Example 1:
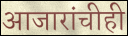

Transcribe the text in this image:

आजारांचीही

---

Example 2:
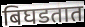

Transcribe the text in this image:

बिघडतात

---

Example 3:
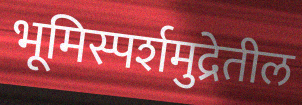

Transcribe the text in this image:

भूमिस्पर्शमुद्रेतील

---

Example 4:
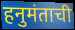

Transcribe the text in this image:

हनुमंताची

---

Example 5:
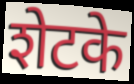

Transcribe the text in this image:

शेटके